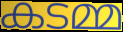
കടമ്മ